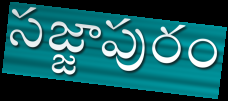
సజ్జాపురం